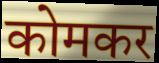
कोमकर